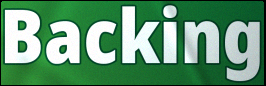
Backing